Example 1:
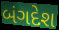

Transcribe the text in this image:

બંગદેશ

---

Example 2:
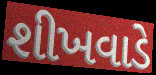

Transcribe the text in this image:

શીખવાડે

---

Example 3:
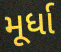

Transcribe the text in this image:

મૂર્ધા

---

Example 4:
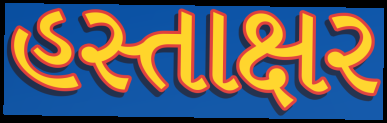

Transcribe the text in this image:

હસ્તાક્ષર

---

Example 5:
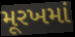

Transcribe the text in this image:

મૂરખમાં